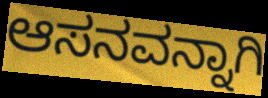
ಆಸನವನ್ನಾಗಿ